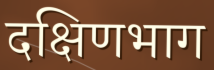
दक्षिणभाग